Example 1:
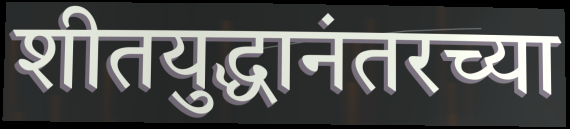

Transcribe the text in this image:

शीतयुद्धानंतरच्या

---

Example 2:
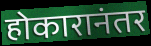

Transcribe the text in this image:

होकारानंतर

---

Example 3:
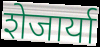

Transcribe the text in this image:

शेजार्या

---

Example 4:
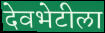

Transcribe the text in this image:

देवभेटीला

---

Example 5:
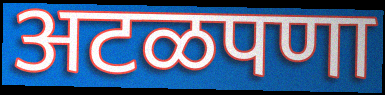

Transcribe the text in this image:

अटळपणा